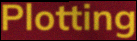
Plotting